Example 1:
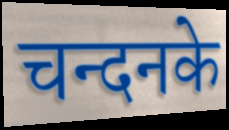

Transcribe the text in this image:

चन्दनके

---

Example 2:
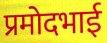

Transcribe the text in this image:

प्रमोदभाई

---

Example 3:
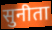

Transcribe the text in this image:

सुनीता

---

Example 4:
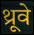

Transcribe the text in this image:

थ्रूवे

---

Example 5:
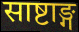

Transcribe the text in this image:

साष्टाङ्ग